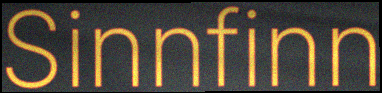
Sinnfinn